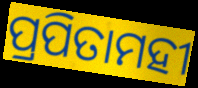
ପ୍ରପିତାମହୀ